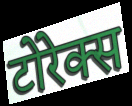
टोरेक्स